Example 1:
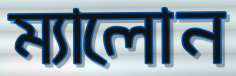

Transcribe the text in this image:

ম্যালোন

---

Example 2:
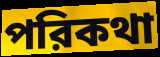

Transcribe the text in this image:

পরিকথা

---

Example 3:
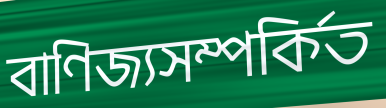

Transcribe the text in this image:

বাণিজ্যসম্পর্কিত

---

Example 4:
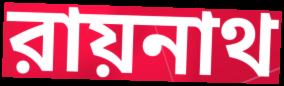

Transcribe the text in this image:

রায়নাথ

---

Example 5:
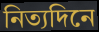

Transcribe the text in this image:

নিত্যদিনে